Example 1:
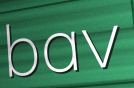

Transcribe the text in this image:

bav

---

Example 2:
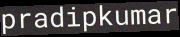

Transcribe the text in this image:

pradipkumar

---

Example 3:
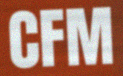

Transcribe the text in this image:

CFM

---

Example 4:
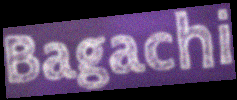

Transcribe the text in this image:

Bagachi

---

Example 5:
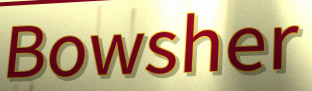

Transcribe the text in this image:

Bowsher